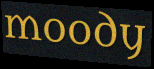
moody